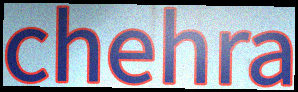
chehra